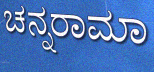
ಚನ್ನರಾಮಾ